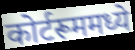
कोर्टरूममध्ये